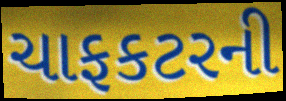
ચાફકટરની